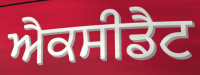
ਐਕਸੀਡੈਟ